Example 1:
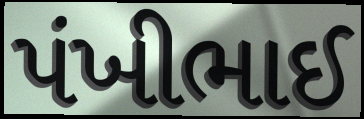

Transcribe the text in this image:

પંખીભાઈ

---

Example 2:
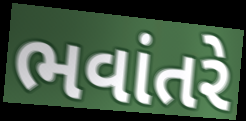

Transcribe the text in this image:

ભવાંતરે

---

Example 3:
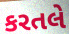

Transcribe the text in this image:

કરતલે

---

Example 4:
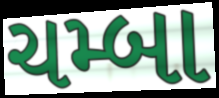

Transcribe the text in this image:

ચમ્બા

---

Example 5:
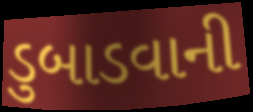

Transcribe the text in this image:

ડુબાડવાની